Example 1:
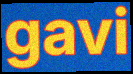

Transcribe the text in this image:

gavi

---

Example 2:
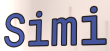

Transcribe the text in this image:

Simi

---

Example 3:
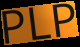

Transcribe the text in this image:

PLP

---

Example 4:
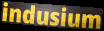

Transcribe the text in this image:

indusium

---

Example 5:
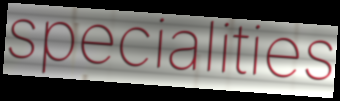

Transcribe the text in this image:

specialities